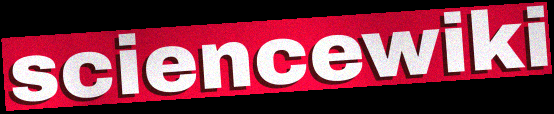
sciencewiki